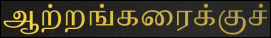
ஆற்றங்கரைக்குச்